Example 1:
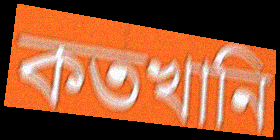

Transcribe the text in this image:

কতখানি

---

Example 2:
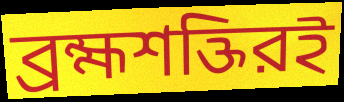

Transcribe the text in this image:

ব্রহ্মশক্তিরই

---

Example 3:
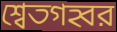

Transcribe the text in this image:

শ্বেতগহ্বর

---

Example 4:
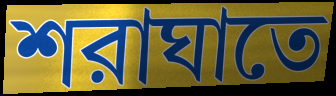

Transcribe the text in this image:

শরাঘাতে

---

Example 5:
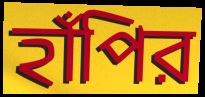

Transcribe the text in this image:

হাঁপির